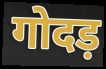
गोदड़